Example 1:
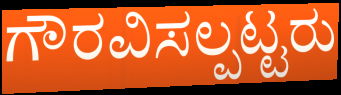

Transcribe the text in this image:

ಗೌರವಿಸಲ್ಪಟ್ಟರು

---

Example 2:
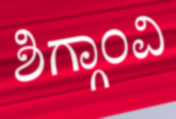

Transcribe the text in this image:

ಶಿಗ್ಗಾಂವಿ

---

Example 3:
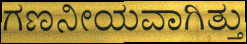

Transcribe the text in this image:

ಗಣನೀಯವಾಗಿತ್ತು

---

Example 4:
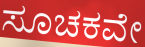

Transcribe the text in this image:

ಸೂಚಕವೇ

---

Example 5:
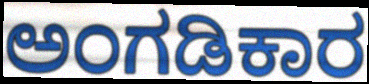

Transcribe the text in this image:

ಅಂಗಡಿಕಾರ